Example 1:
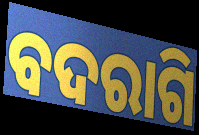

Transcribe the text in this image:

ବଦରାଗି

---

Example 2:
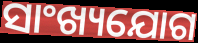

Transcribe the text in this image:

ସାଂଖ୍ୟଯୋଗ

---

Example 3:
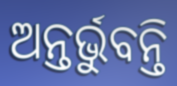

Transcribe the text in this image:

ଅନ୍ତର୍ଭୁବନ୍ତି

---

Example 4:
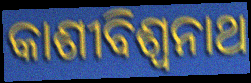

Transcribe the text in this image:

କାଶୀବିଶ୍ଵନାଥ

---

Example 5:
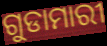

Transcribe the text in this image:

ଗୁଡାମାରୀ